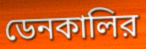
ডেনকালির